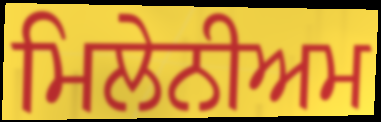
ਮਿਲੇਨੀਅਮ